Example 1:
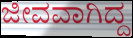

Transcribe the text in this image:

ಜೀವವಾಗಿದ್ದ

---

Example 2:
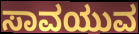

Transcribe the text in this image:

ಸಾವಯುವ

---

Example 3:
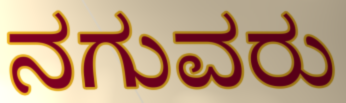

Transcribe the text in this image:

ನಗುವರು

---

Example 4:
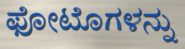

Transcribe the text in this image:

ಫೋಟೊಗಳನ್ನು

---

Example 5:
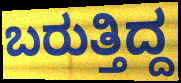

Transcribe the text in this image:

ಬರುತ್ತಿದ್ದ